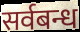
सर्वबन्ध